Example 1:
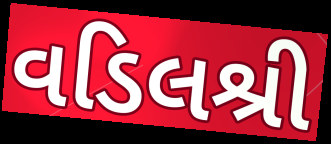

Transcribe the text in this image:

વડિલશ્રી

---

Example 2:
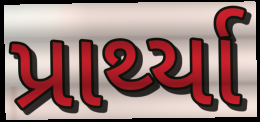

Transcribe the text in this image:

પ્રાર્થ્યા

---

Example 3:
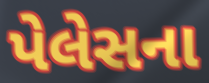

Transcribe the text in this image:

પેલેસના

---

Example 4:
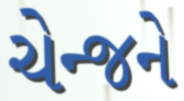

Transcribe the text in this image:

ચેન્જને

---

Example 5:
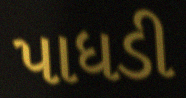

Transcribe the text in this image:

પાધડી